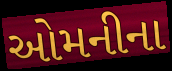
ઓમનીના